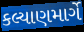
કલ્યાણમાર્ગે